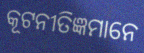
କୂଟନୀତିଜ୍ଞମାନେ